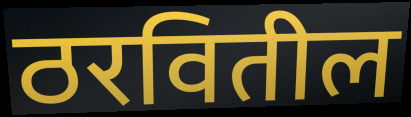
ठरवितील